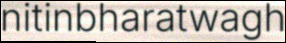
nitinbharatwagh